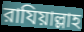
রাযিয়াল্লাহ